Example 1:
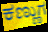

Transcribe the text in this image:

ಕಣ್ಣುಗ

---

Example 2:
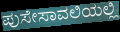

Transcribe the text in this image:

ಪುಸೇಸಾವಲಿಯಲ್ಲಿ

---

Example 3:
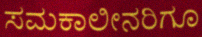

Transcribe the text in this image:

ಸಮಕಾಲೀನರಿಗೂ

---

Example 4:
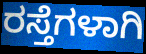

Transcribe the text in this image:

ರಸ್ತೆಗಳಾಗಿ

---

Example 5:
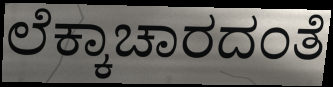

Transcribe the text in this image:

ಲೆಕ್ಕಾಚಾರದಂತೆ